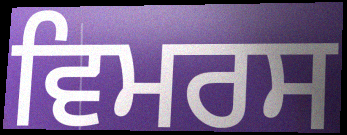
ਵਿਮਰਸ